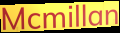
Mcmillan